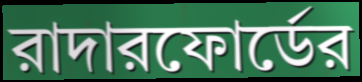
রাদারফোর্ডের